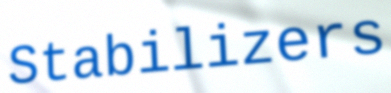
Stabilizers